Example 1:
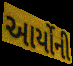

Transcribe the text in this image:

આર્યોની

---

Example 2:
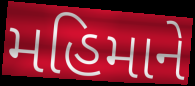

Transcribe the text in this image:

મહિમાને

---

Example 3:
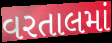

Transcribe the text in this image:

વરતાલમાં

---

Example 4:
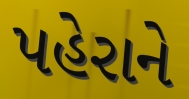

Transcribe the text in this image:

પહેરાને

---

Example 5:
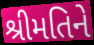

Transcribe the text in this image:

શ્રીમતિને